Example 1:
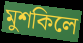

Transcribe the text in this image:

মুশকিলে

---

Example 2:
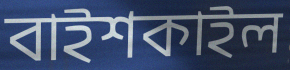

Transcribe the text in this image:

বাইশকাইল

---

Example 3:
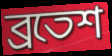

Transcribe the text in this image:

ব্রতেশ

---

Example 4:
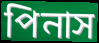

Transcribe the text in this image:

পিনাস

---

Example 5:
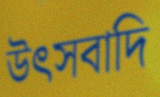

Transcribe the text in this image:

উৎসবাদি